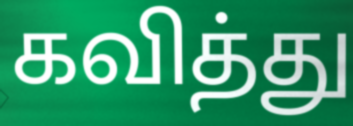
கவித்து